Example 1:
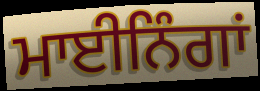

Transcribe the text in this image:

ਮਾਈਨਿੰਗਾਂ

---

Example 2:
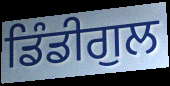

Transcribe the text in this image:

ਡਿੰਡੀਗੁਲ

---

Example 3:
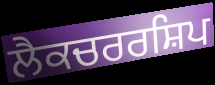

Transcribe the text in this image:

ਲੈਕਚਰਰਸ਼ਿਪ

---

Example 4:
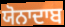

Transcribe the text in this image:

ਯੋਨਾਦਾਬ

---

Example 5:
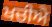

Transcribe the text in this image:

ਖਚੀਐ